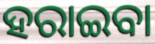
ହରାଇବା